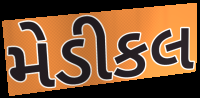
મેડીકલ